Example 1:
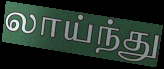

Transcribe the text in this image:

லாய்ந்து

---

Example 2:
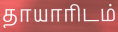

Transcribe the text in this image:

தாயாரிடம்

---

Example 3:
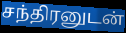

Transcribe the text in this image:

சந்திரனுடன்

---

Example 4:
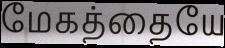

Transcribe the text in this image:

மேகத்தையே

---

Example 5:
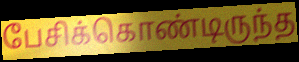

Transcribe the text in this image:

பேசிக்கொண்டிருந்த